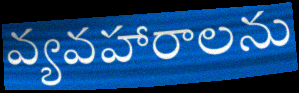
వ్యవహారాలను